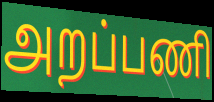
அறப்பணி